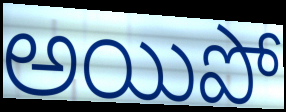
అయిపో